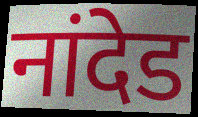
नांदेड